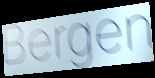
Bergen